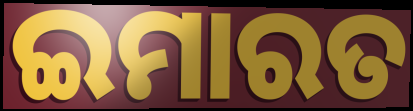
ଇମାରତ